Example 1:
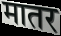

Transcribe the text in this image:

मातर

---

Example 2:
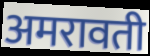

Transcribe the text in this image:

अमरावती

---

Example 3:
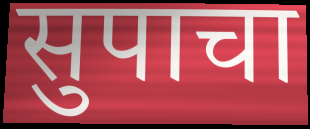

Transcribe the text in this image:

सुपाचा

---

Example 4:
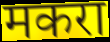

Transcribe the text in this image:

मकरा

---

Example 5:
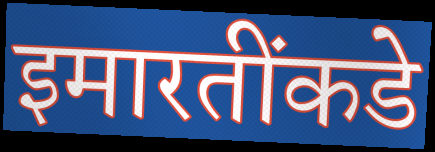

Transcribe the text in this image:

इमारतींकडे